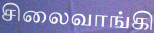
சிலைவாங்கி